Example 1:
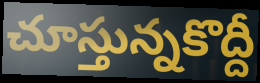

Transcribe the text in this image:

చూస్తున్నకొద్దీ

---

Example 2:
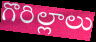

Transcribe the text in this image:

గొరిల్లాలు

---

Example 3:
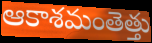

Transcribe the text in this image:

ఆకాశమంతెత్తు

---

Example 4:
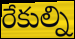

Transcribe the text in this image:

రేకుల్ని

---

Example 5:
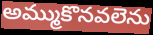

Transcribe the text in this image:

అమ్ముకొనవలెను